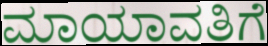
ಮಾಯಾವತಿಗೆ